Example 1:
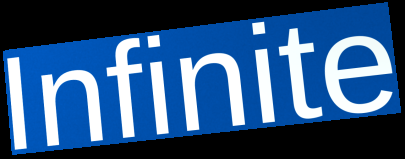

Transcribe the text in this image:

Infinite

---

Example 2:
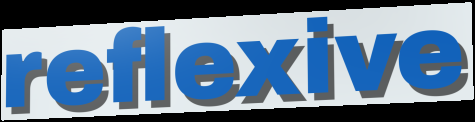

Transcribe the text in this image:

reflexive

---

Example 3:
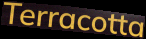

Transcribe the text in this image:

Terracotta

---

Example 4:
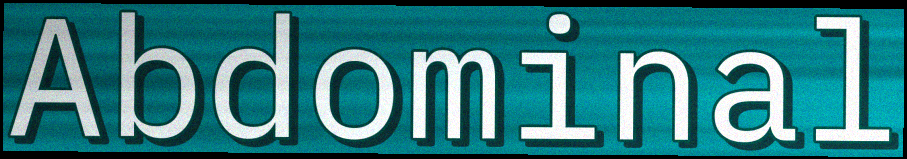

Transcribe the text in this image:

Abdominal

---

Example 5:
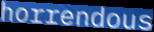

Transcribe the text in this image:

horrendous